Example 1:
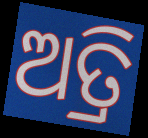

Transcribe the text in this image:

ଅତ୍ରି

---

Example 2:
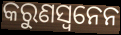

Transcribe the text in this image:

କରୁଣସ୍ଵନେନ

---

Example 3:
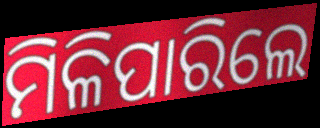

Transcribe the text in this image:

ମିଳିପାରିଲେ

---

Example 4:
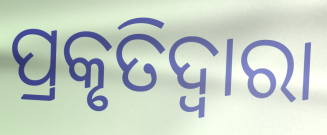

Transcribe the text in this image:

ପ୍ରକୃତିଦ୍ୱାରା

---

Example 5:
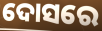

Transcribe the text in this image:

ଦୋସରେ